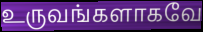
உருவங்களாகவே